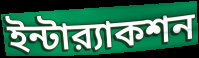
ইন্টার‍্যাকশন